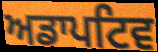
ਅਡਾਪਟਿਵ